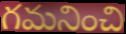
గమనించి